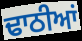
ਢਾਠੀਆਂ